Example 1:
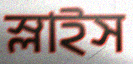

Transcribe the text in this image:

স্লাইস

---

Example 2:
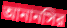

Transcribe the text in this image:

আনানসির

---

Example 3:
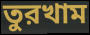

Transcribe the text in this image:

তুরখাম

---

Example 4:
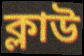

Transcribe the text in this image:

ক্লাউ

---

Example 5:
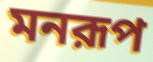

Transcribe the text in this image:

মনরূপ